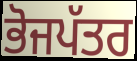
ਭੋਜਪੱਤਰ